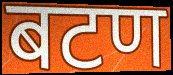
बटण